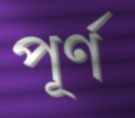
পূৰ্ণ